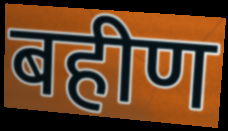
बहीण